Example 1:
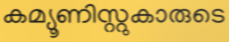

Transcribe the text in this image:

കമ്യൂണിസ്റ്റുകാരുടെ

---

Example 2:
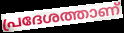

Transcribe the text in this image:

പ്രദേശത്താണ്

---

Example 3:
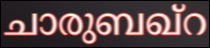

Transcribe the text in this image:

ചാരുബഖ്റ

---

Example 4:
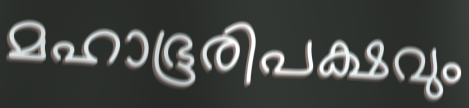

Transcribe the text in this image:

മഹാഭൂരിപക്ഷവും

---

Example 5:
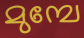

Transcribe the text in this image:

മുമ്പേ